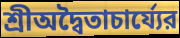
শ্রীঅদ্বৈতাচার্য্যের